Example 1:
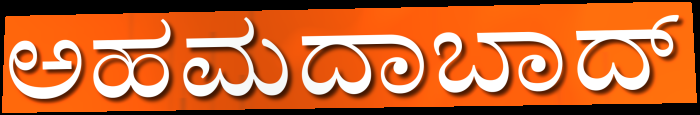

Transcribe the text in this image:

ಅಹಮದಾಬಾದ್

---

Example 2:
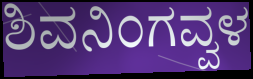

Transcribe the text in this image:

ಶಿವನಿಂಗವ್ವಳ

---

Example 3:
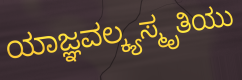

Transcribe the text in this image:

ಯಾಜ್ಞವಲ್ಕ್ಯಸ್ಮೃತಿಯು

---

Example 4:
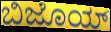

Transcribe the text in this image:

ಬಿಜೊಯ್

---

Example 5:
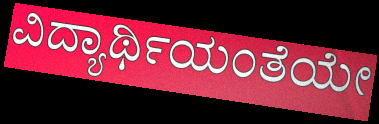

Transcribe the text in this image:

ವಿದ್ಯಾರ್ಥಿಯಂತೆಯೇ